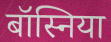
बॉस्निया